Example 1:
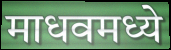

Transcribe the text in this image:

माधवमध्ये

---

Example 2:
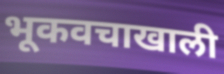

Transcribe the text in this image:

भूकवचाखाली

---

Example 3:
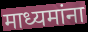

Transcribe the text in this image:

माध्यमांना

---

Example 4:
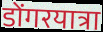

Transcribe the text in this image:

डोंगरयात्रा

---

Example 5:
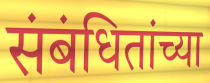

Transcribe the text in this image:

संबंधितांच्या